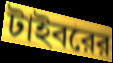
টাইবরের